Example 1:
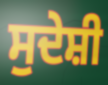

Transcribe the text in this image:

ਸੁਦੇਸ਼ੀ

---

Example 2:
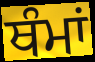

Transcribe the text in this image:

ਥੰਮਾਂ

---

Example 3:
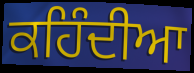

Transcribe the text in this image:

ਕਹਿੰਦੀਆ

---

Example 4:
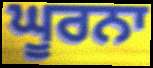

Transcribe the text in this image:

ਘੂਰਨਾ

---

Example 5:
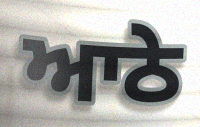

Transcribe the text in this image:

ਆਠੇ